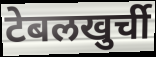
टेबलखुर्ची